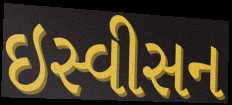
ઇસ્વીસન